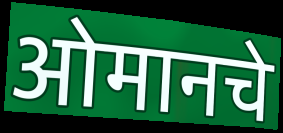
ओमानचे